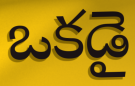
ఒకడై